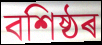
বশিষ্ঠৰ